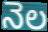
నెల